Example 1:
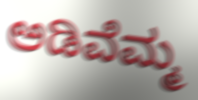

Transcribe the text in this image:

ಅಡಿವೆಮ್ಮ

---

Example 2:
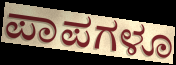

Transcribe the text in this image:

ಪಾಪಗಳೂ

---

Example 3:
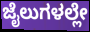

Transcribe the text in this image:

ಜೈಲುಗಳಲ್ಲೇ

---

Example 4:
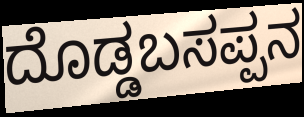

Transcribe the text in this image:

ದೊಡ್ಡಬಸಪ್ಪನ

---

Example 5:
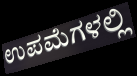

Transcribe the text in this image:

ಉಪಮೆಗಳಲ್ಲಿ